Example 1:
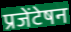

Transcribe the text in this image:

प्रजेंटेषन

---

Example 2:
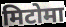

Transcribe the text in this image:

मिटोमा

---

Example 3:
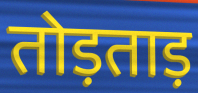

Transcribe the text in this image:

तोड़ताड़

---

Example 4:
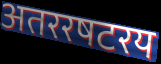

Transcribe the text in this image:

अतररषटरय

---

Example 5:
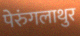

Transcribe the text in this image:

पेरुंगलाथुर